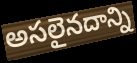
అసలైనదాన్ని